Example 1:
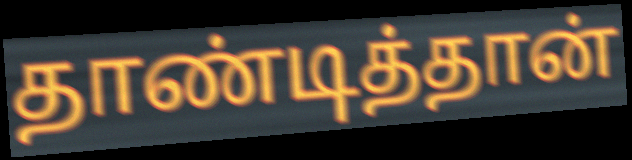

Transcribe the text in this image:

தாண்டித்தான்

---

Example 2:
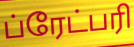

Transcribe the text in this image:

ப்ரேட்பரி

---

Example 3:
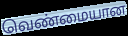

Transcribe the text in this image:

வெண்மையான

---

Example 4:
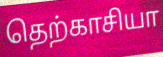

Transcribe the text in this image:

தெற்காசியா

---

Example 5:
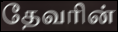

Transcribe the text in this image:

தேவரின்